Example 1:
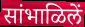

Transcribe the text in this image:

सांभाळिलें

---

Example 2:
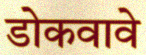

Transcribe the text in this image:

डोकवावे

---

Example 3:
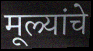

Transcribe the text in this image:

मूल्यांचे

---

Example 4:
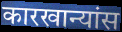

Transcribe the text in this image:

कारखान्यांस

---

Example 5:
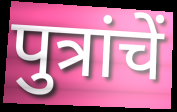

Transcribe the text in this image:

पुत्रांचें